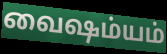
வைஷம்யம்